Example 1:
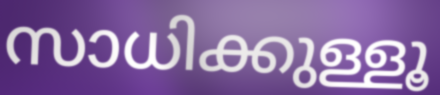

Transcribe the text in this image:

സാധിക്കുള്ളൂ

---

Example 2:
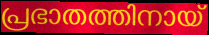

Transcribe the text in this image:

പ്രഭാതത്തിനായ്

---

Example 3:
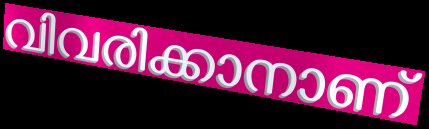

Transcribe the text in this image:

വിവരിക്കാനാണ്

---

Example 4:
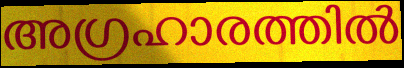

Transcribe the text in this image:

അഗ്രഹാരത്തിൽ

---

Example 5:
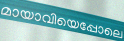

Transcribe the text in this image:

മായാവിയെപ്പോലെ